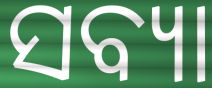
ସବ୍ୟା